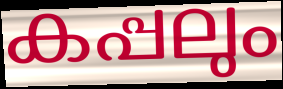
കപ്പലും